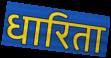
धारिता